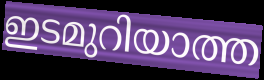
ഇടമുറിയാത്ത